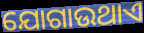
ଯୋଗାଉଥାଏ